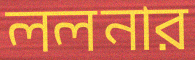
ললনার